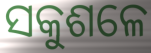
ସକୁଶଳେ